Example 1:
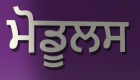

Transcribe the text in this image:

ਮੋਡੂਲਸ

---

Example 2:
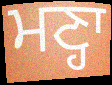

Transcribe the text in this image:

ਮਣ੍ਹਾ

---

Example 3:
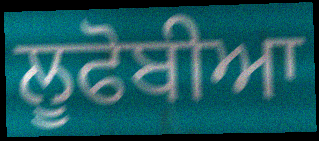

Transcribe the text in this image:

ਲੂਫੋਬੀਆ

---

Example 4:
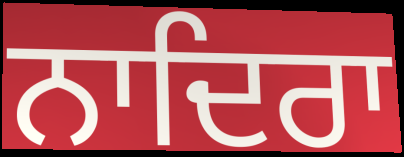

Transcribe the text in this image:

ਨਾਦਿਰਾ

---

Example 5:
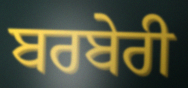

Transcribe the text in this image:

ਬਰਬੇਰੀ